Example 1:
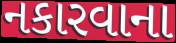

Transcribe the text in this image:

નકારવાના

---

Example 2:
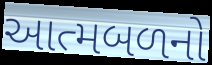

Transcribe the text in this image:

આત્મબળનો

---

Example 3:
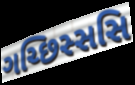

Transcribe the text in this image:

ગચ્છિસ્સસિ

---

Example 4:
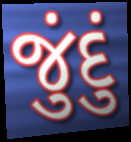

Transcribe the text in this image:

જુંદું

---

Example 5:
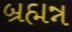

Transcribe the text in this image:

બ્રહ્મન્ન